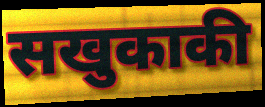
सखुकाकी